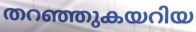
തറഞ്ഞുകയറിയ